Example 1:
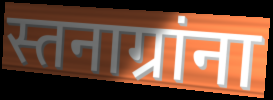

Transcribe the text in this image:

स्तनाग्रांना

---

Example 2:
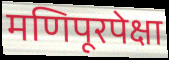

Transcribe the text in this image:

मणिपूरपेक्षा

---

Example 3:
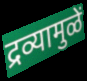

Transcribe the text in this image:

द्रव्यामुळें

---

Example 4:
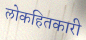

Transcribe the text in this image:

लोकहितकारी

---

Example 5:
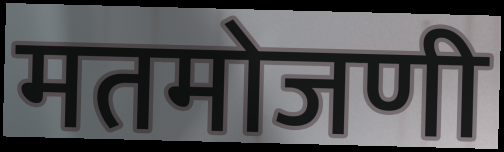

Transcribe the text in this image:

मतमोजणी